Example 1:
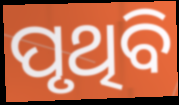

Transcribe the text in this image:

ପୃଥିବି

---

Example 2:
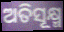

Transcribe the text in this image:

ଅତିସୂକ୍ଷ୍ମ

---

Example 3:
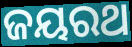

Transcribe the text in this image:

ଜୟରଥ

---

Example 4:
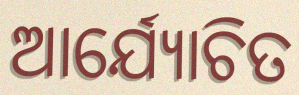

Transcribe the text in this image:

ଆର୍ଯ୍ୟୋଚିତ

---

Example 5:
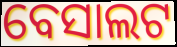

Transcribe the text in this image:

ବେସାଲଟ